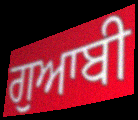
ਗੁਆਬੀ